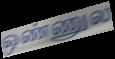
ஒண்ணுல